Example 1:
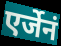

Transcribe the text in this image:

एर्जेनं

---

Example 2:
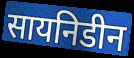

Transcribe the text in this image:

सायनिडीन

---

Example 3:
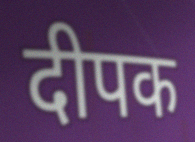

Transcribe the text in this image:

दीपक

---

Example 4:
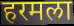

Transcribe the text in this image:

हरमला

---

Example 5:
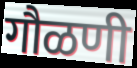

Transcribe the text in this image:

गौळणी